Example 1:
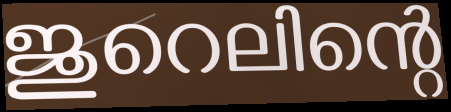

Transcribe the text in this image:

ജുറെലിന്റെ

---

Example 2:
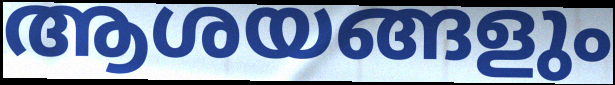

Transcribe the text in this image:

ആശയങ്ങളും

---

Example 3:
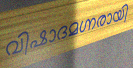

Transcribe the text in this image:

വിഷാദമഗ്നരായി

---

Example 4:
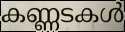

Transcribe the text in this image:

കണ്ണടകൾ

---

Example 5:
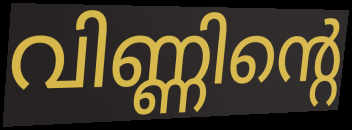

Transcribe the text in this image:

വിണ്ണിന്റെ